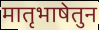
मातृभाषेतुन